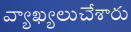
వ్యాఖ్యలుచేశారు